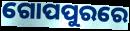
ଗୋପପୁରରେ